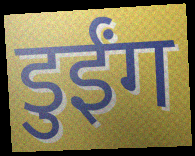
डुईंग